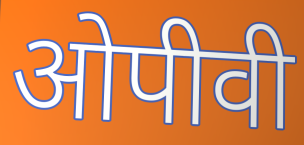
ओपीवी